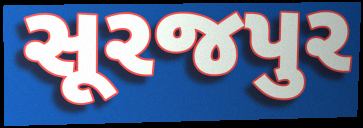
સૂરજપુર